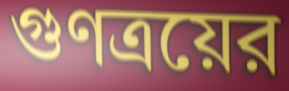
গুণত্রয়ের